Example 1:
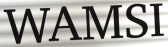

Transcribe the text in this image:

WAMSI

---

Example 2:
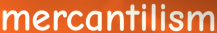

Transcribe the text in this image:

mercantilism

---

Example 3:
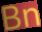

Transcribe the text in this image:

Bn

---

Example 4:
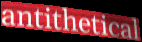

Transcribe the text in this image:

antithetical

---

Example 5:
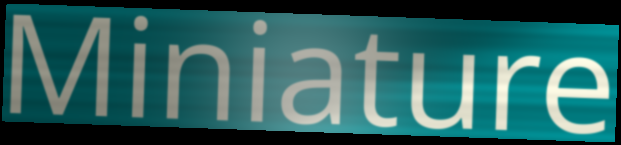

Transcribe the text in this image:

Miniature